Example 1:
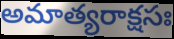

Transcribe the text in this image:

అమాత్యరాక్షసః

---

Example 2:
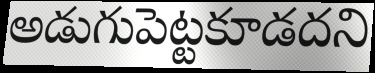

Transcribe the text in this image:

అడుగుపెట్టకూడదని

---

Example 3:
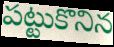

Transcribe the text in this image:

పట్టుకొనిన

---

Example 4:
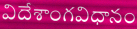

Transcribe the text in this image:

విదేశాంగవిధానం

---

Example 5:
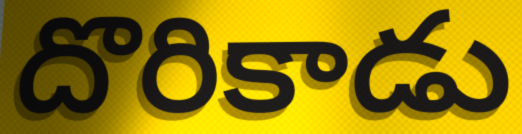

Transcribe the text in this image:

దొరికాడు